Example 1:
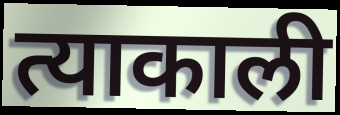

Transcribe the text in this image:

त्याकाली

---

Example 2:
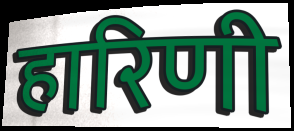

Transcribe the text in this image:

हारिणी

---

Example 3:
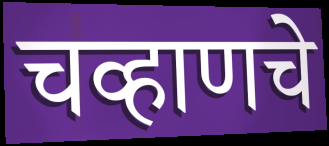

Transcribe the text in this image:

चव्हाणचे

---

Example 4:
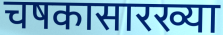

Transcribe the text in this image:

चषकासारख्या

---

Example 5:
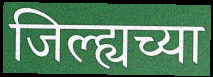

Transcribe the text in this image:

जिल्ह्यच्या